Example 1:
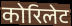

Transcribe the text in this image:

कोरिलेट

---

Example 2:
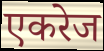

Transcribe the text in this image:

एकरेज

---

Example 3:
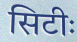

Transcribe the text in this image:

सिटीः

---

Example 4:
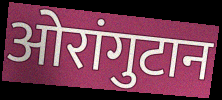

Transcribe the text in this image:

ओरांगुटान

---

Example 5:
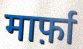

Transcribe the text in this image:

मार्फ़ा